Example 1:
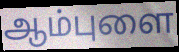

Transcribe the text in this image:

ஆம்புளை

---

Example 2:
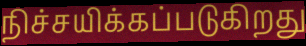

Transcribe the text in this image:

நிச்சயிக்கப்படுகிறது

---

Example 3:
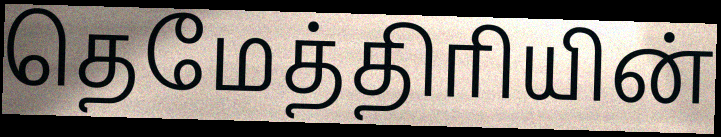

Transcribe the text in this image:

தெமேத்திரியின்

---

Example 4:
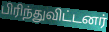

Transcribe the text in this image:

பிரிந்துவிட்டனர்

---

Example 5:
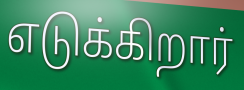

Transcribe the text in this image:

எடுக்கிறார்